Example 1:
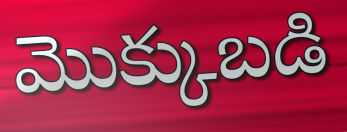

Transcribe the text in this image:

మొక్కుబడి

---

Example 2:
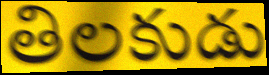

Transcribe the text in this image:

తిలకుడు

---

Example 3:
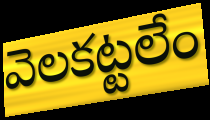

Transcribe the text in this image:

వెలకట్టలేం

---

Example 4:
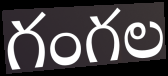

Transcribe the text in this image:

గంగల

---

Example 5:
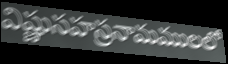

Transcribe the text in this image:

విష్ణుసహస్రనామములలో